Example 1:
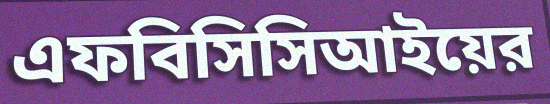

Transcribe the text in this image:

এফবিসিসিআইয়ের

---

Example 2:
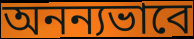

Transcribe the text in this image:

অনন্যভাবে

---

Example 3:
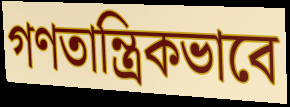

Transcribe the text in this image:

গণতান্ত্রিকভাবে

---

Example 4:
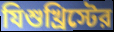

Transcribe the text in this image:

যিশুখ্রিস্টের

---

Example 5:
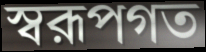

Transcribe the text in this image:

স্বরূপগত